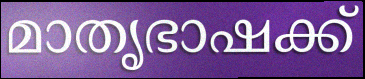
മാതൃഭാഷക്ക്